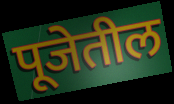
पूजेतील